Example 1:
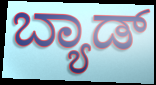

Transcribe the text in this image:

ಬ್ಯಾಡ್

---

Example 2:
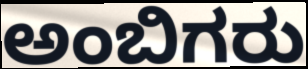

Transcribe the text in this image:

ಅಂಬಿಗರು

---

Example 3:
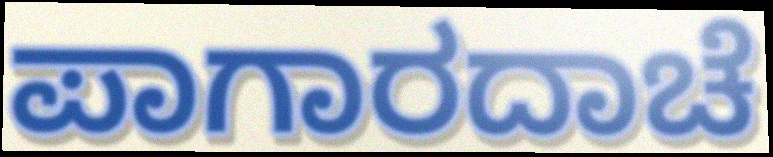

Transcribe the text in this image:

ಪಾಗಾರದಾಚೆ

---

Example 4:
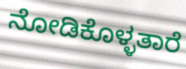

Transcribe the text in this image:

ನೋಡಿಕೊಳ್ಳತಾರೆ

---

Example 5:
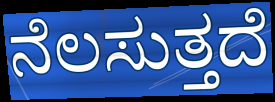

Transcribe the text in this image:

ನೆಲಸುತ್ತದೆ